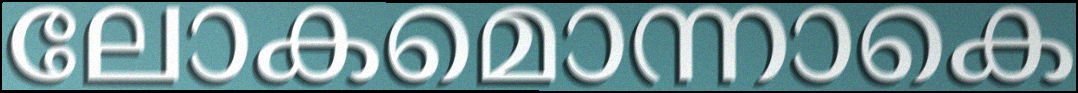
ലോകമൊന്നാകെ